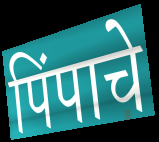
पिंपाचे